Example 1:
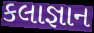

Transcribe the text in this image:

કલાજ્ઞાન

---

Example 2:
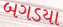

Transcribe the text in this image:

બગડયા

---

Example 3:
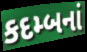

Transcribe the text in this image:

કદમ્બનાં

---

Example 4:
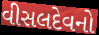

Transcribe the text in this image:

વીસલદેવનો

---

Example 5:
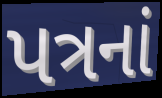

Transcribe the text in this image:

પત્રનાં